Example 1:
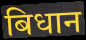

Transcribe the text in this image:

बिधान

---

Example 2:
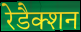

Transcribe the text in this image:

रेडैक्शन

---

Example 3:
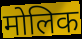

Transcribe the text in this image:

मोलिक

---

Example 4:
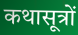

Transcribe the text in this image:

कथासूत्रों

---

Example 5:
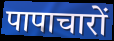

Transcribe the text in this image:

पापाचारों